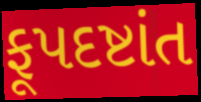
ફૂપદષ્ટાંત